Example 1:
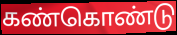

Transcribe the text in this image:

கண்கொண்டு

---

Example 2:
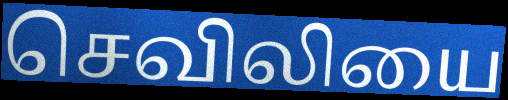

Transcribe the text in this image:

செவிலியை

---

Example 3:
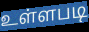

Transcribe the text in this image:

உள்ளபடி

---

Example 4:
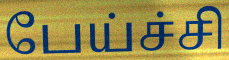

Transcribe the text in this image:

பேய்ச்சி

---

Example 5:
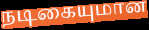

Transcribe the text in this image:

நடிகையுமான